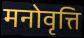
मनोवृत्ति